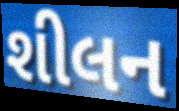
શીલન